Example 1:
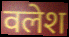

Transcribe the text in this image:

वलेश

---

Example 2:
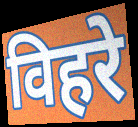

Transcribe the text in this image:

विहरे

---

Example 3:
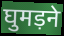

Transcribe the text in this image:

घुमड़ने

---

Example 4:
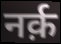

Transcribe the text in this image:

नर्क़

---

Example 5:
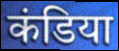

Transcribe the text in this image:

कंडिया